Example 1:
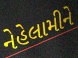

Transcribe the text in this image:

નેહેલામીને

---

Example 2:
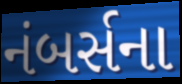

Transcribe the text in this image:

નંબર્સના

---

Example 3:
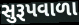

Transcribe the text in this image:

સુરૂપવાળા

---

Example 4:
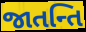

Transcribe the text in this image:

જાતન્તિ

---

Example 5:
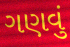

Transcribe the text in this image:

ગણવું